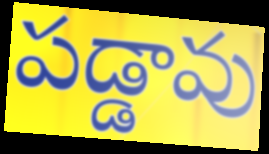
పడ్డావు